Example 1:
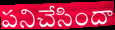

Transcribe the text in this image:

పనిచేసిందా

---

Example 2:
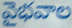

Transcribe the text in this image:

వైభవాల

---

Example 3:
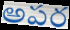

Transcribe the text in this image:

అపర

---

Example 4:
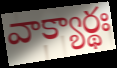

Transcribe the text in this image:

వాక్యార్థః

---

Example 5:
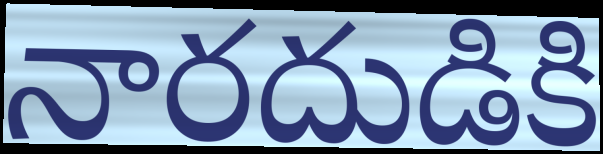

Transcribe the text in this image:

నారదుడికి